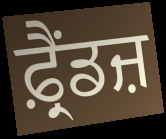
ਫ਼੍ਰੈਂਡਜ਼